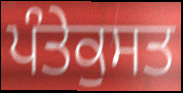
ਪੰਤੇਕੁਸਤ